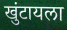
खुंटायला